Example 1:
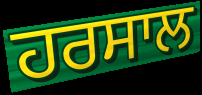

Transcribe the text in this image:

ਹਰਸਾਲ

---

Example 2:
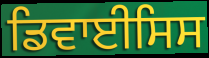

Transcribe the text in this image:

ਡਿਵਾਈਸਿਸ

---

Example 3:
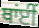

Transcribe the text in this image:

ਥਾਂਈਂ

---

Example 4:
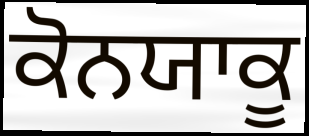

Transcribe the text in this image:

ਕੋਨਯਾਕੂ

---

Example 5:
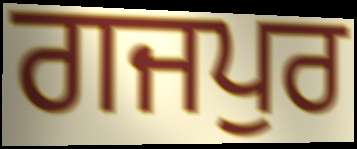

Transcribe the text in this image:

ਗਜਪੁਰ